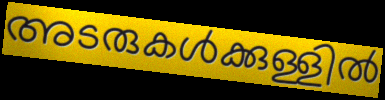
അടരുകൾക്കുള്ളിൽ